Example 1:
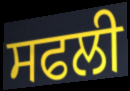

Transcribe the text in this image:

ਸਫਲੀ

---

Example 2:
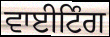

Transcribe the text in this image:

ਵਾਈਟਿੰਗ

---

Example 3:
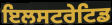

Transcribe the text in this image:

ਇਲਸਟਰੇਟਿਡ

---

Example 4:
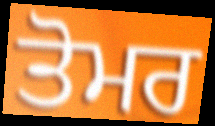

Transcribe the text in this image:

ਤੋਮਰ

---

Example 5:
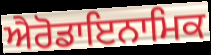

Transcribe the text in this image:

ਐਰੋਡਾਇਨਾਮਿਕ